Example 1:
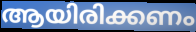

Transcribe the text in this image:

ആയിരിക്കണം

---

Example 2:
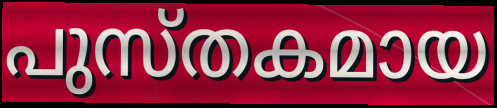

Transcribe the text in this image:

പുസ്തകമായ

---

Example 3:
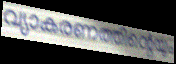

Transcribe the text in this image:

വ്യാകരണത്തിന്റെയും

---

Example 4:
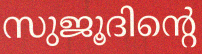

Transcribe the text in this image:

സുജൂദിന്റെ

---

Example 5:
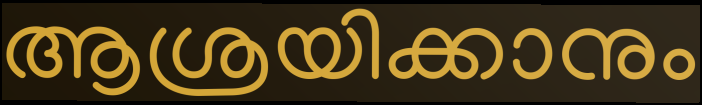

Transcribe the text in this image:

ആശ്രയിക്കാനും